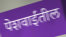
पेशवाईंतील